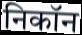
निकॉन